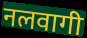
नलवागी